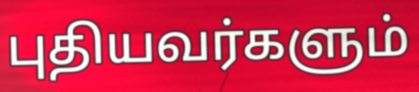
புதியவர்களும்